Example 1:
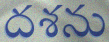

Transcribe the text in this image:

దశను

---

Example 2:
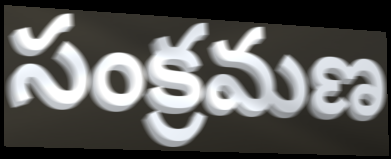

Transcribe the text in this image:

సంక్రమణ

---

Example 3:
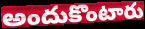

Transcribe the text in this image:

అందుకొంటారు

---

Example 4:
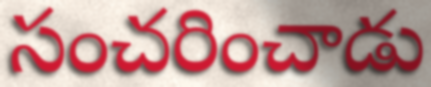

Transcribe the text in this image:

సంచరించాడు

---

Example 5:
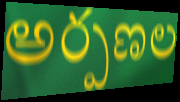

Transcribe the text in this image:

అర్పణల